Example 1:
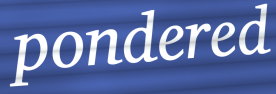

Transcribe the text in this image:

pondered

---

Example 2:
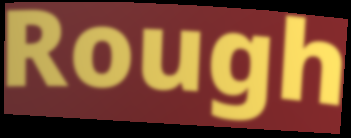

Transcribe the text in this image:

Rough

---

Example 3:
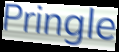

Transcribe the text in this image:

Pringle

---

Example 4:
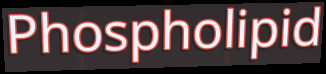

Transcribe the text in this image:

Phospholipid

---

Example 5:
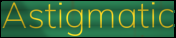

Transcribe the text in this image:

Astigmatic